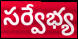
సర్వేభ్య